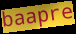
baapre